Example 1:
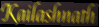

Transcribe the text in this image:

Kailashnath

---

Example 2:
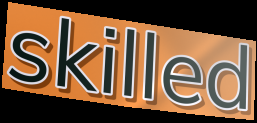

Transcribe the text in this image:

skilled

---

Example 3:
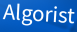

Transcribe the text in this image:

Algorist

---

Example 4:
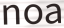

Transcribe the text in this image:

noa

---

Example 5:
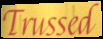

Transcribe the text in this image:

Trussed